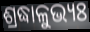
ଶ୍ରଦ୍ଧାଳୁଭ୍ୟଃ